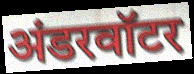
अंडरवॉटर